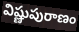
విష్ణుపురాణం